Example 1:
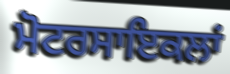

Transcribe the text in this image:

ਮੋਟਰਸਾਇਕਲਾਂ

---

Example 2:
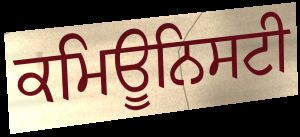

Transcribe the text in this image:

ਕਮਿਊਨਿਸਟੀ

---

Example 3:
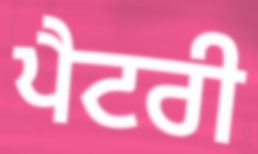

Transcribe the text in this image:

ਪੈਟਰੀ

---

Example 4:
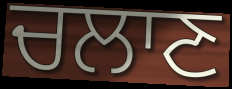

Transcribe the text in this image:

ਚਲਾਣ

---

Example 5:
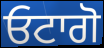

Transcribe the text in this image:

ਓਟਾਗੋ